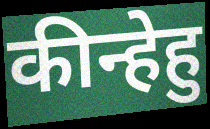
कीन्हेहु